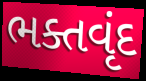
ભક્તવૃંદ